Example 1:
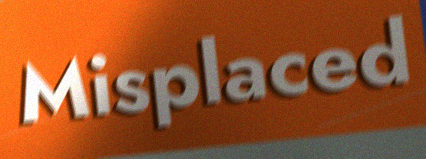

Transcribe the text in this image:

Misplaced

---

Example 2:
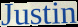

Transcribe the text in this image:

Justin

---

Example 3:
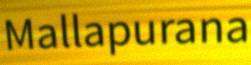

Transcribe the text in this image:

Mallapurana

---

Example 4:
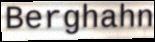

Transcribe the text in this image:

Berghahn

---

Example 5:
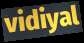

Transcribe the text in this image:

vidiyal